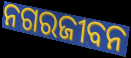
ନଗରଜୀବନ